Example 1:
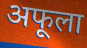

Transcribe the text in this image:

अफूला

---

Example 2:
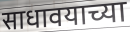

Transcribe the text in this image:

साधावयाच्या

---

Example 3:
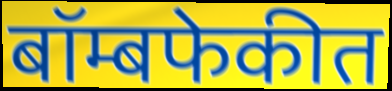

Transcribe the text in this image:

बॉम्बफेकीत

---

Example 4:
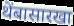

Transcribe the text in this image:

थेंबासारखा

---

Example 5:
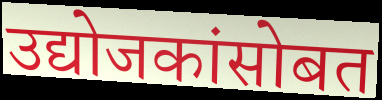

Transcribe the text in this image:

उद्योजकांसोबत